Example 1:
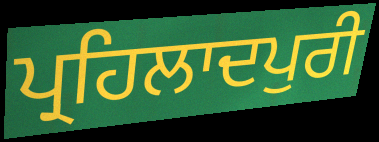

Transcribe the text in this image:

ਪ੍ਰਹਿਲਾਦਪੁਰੀ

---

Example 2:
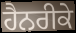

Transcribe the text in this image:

ਹੈਨਰੀਕੇ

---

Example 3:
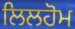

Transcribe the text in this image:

ਲਿਲਹੋਮ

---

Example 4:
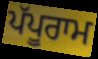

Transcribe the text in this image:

ਪੱਪੂਰਾਮ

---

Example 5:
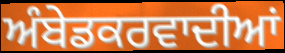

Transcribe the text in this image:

ਅੰਬੇਡਕਰਵਾਦੀਆਂ